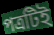
পত্রটিই